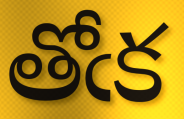
తోఁక